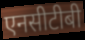
एनसीटीबी